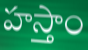
హస్తాం